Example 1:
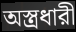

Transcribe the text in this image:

অস্ত্রধারী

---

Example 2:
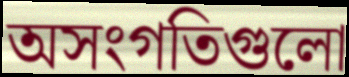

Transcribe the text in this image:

অসংগতিগুলো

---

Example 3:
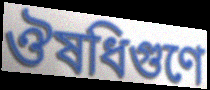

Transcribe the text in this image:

ঔষধিগুণে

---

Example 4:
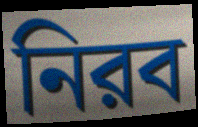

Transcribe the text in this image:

নিরব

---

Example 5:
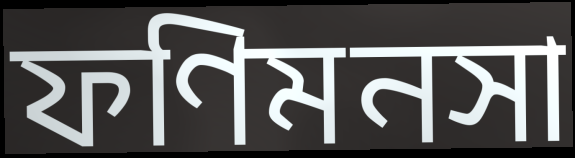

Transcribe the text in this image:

ফণিমনসা